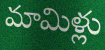
మామిళ్లు